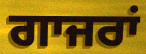
ਗਾਜਰਾਂ